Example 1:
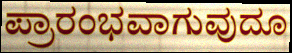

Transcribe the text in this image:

ಪ್ರಾರಂಭವಾಗುವುದೂ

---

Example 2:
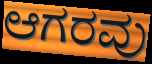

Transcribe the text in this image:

ಆಗರವು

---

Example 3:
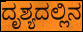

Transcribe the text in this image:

ದೃಶ್ಯದಲ್ಲಿನ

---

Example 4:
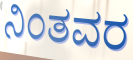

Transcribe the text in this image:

ನಿಂತವರ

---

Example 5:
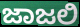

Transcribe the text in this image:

ಜಾಜಲಿ